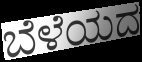
ಬೆಳೆಯದ